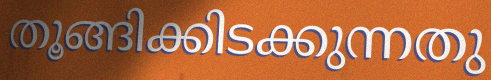
തൂങ്ങിക്കിടക്കുന്നതു